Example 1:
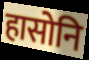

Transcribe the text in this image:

हासोनि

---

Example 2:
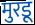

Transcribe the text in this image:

मुरडू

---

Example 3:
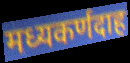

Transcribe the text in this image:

मध्यकर्णदाह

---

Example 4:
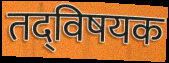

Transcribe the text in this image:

तद्‌विषयक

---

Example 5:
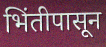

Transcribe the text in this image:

भिंतीपासून